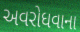
અવરોધવાના